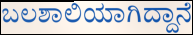
ಬಲಶಾಲಿಯಾಗಿದ್ದಾನೆ